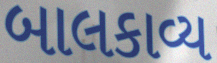
બાલકાવ્ય